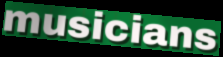
musicians